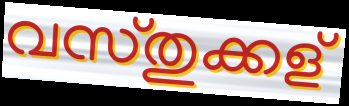
വസ്തുക്കള്